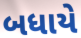
બધાયે